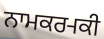
ਨਾਮਕਰ੍ਮਕੀ